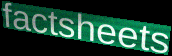
factsheets